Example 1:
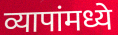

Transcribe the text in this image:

व्यापांमध्ये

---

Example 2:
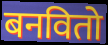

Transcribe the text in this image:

बनवितो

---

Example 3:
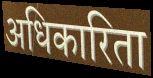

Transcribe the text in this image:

अधिकारिता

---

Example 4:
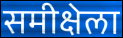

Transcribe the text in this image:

समीक्षेला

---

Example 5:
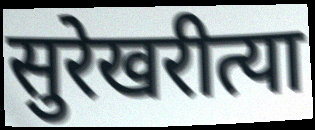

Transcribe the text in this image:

सुरेखरीत्या